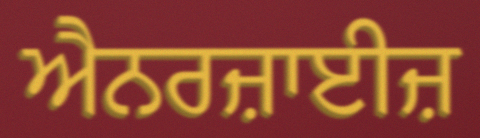
ਐਨਰਜ਼ਾਈਜ਼